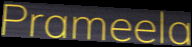
Prameela